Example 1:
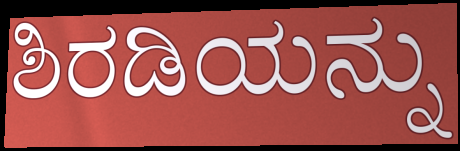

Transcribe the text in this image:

ಶಿರಡಿಯನ್ನು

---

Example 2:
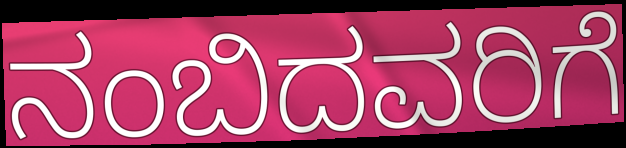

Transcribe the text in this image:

ನಂಬಿದವರಿಗೆ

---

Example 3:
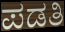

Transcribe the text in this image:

ಪಡತಿ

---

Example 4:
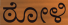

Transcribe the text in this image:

ಠೋಳಿ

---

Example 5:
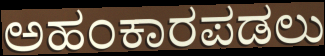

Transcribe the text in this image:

ಅಹಂಕಾರಪಡಲು